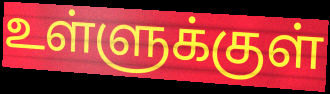
உள்ளுக்குள்